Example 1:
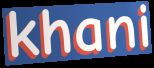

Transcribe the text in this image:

khani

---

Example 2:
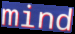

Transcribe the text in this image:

mind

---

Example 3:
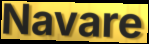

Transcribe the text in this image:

Navare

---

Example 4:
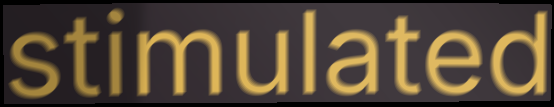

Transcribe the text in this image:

stimulated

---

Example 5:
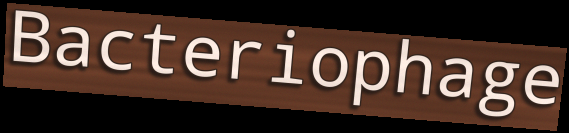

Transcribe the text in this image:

Bacteriophage